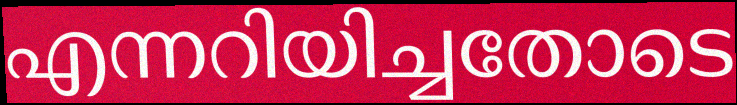
എന്നറിയിച്ചതോടെ